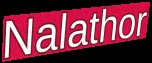
Nalathor